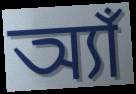
অ্যাঁ